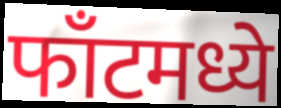
फाँटमध्ये